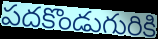
పదకొండుగురికి